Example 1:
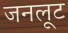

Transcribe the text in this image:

जनलूट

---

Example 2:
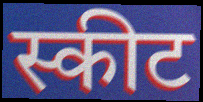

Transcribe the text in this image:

स्‍कीट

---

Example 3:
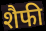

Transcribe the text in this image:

शैफी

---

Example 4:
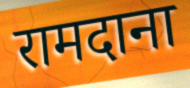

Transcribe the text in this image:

रामदाना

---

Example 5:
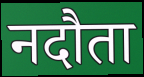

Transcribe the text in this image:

नदौता